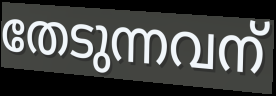
തേടുന്നവന്